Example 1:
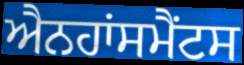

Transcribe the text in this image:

ਐਨਹਾਂਸਮੈਂਟਸ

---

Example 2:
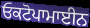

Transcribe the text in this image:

ਓਕਟੋਪਾਮਾਈਨ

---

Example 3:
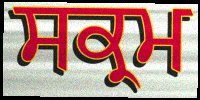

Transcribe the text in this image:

ਸਕ੍ਰਮ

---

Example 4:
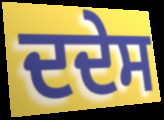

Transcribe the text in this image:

ਦਦੇਸ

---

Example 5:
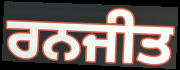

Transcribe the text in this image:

ਰਨਜੀਤ